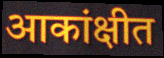
आकांक्षीत